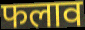
फलाव